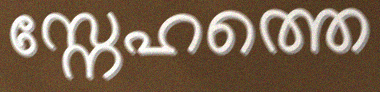
സ്നേഹത്തെ